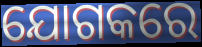
ଯୋଗକରେ